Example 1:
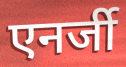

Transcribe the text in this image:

एनर्जी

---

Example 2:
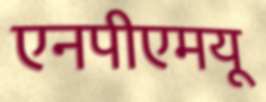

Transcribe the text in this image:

एनपीएमयू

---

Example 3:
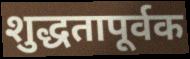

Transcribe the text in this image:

शुद्धतापूर्वक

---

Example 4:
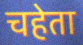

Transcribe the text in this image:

चहेता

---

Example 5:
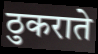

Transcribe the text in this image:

ठुकराते